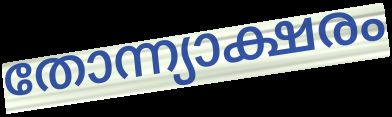
തോന്ന്യാക്ഷരം